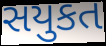
સયુકત